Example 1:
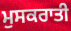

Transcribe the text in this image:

ਮੁਸਕਰਾਤੀ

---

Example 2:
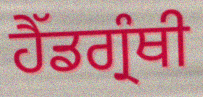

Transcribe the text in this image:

ਹੈੱਡਗ੍ਰੰਥੀ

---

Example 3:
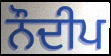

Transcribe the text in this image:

ਨੌਦੀਪ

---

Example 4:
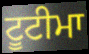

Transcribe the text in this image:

ਟੂਟੀਮਾ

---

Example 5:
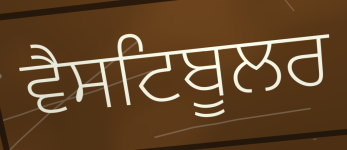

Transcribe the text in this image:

ਵੈਸਟਿਬੂਲਰ